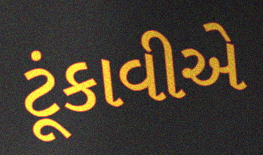
ટૂંકાવીએ